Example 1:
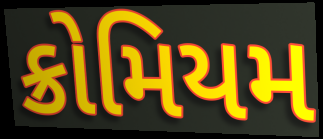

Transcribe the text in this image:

ક્રોમિયમ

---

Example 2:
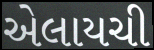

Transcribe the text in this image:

એલાયચી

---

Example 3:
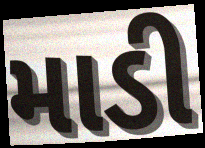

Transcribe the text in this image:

માડી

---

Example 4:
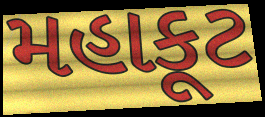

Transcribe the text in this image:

મહાકૂટ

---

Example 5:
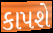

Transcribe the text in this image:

કાપશે